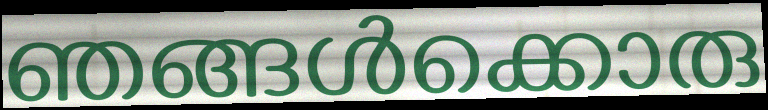
ഞങ്ങൾക്കൊരു